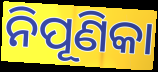
ନିପୂଣିକା